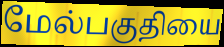
மேல்பகுதியை